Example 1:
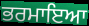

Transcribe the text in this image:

ਭਰਮਾਇਆ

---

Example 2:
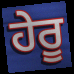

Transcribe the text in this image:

ਹੇਰੂ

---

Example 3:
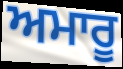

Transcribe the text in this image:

ਅਮਾਰੂ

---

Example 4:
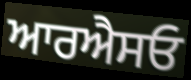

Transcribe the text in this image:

ਆਰਐਸਓ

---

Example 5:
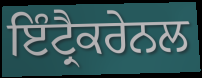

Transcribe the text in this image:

ਇੰਟ੍ਰੈਕਰੇਨਲ